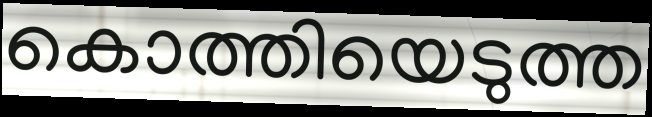
കൊത്തിയെടുത്ത